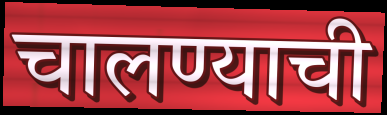
चालण्याची